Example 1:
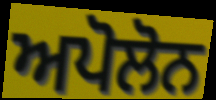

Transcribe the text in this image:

ਅਪੋਲੋਨ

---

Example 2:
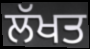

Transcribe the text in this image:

ਲੱਖਤ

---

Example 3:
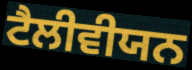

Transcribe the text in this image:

ਟੈਲੀਵੀਯਨ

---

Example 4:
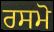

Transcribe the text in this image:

ਰਸਮੋ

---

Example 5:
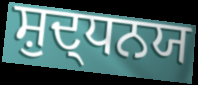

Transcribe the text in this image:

ਸ਼ੁਦ੍ਧਨਯ